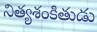
నిత్యశంకితుడు